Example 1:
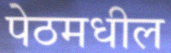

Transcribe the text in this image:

पेठमधील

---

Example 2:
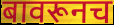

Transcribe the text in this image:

बावरूनच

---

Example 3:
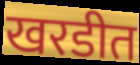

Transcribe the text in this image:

खरडीत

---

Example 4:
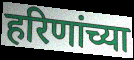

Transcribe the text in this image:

हरिणांच्या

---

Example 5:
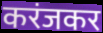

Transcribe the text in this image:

करंजकर